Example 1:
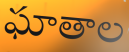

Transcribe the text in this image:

ఘాతాల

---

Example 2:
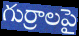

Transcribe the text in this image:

గుర్రాలపై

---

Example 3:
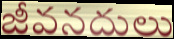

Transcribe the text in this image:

జీవనదులు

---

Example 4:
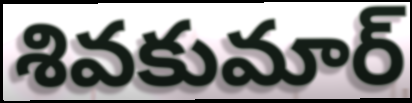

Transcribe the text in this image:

శివకుమార్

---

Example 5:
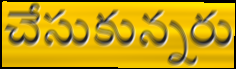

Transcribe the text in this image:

చేసుకున్నరు